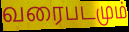
வரைபடமும்